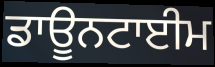
ਡਾਊਨਟਾਈਮ